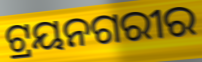
ଟ୍ରୟନଗରୀର